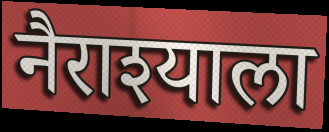
नैराश्याला